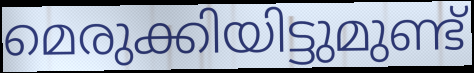
മെരുക്കിയിട്ടുമുണ്ട്